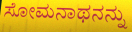
ಸೋಮನಾಥನನ್ನು